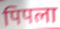
पिपला